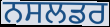
ਨਸਲਡਰ